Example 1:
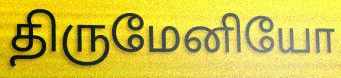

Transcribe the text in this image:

திருமேனியோ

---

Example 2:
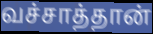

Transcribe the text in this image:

வச்சாத்தான்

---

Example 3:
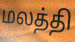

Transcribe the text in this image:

மலத்தி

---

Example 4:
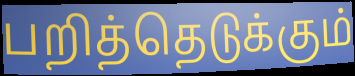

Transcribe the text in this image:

பறித்தெடுக்கும்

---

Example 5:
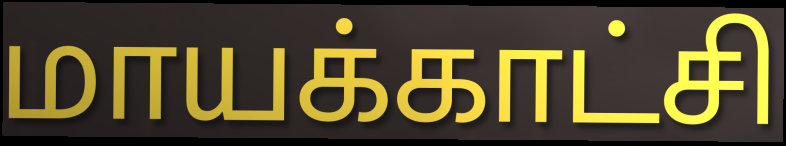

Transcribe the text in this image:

மாயக்காட்சி